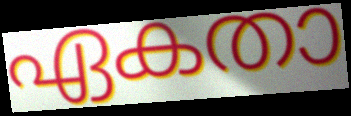
ഏകതാ